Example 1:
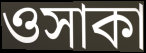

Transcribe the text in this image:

ওসাকা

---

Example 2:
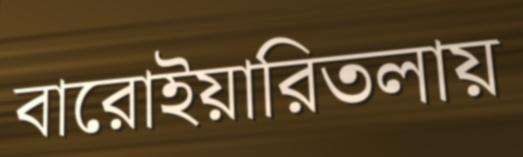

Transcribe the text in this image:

বারোইয়ারিতলায়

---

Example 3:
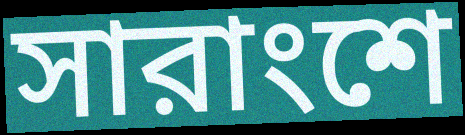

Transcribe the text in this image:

সারাংশে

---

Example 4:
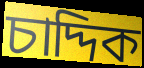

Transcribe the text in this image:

চাদ্দিক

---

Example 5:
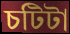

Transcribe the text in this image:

চটিটা